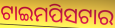
ଟାଇମପିସଟାର